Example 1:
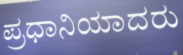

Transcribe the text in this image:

ಪ್ರಧಾನಿಯಾದರು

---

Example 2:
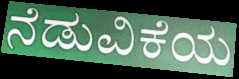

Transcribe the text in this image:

ನೆಡುವಿಕೆಯ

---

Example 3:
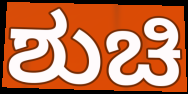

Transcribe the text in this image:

ಶುಚಿ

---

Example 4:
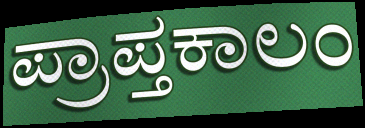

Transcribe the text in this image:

ಪ್ರಾಪ್ತಕಾಲಂ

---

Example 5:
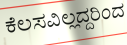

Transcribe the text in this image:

ಕೆಲಸವಿಲ್ಲದ್ದರಿಂದ